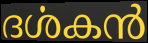
ദൎശകൻ